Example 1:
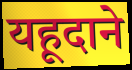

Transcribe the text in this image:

यहूदाने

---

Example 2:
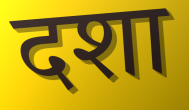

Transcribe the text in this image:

दशा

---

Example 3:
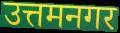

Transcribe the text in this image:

उत्तमनगर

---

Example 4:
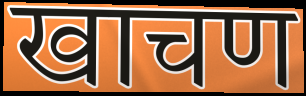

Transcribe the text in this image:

खाचण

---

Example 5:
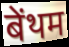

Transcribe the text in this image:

बेंथम